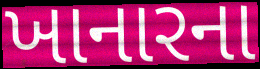
ખાનારના